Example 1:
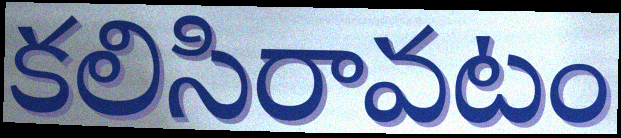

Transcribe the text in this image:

కలిసిరావటం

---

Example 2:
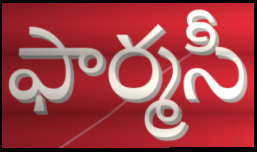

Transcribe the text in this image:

ఫార్మసీ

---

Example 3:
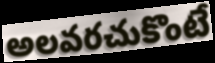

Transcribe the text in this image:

అలవరచుకొంటే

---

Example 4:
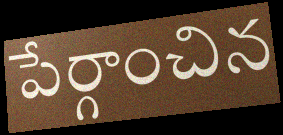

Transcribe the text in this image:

పేర్గాంచిన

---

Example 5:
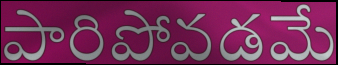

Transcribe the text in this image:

పారిపోవడమే